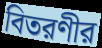
বিতরণীর